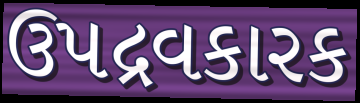
ઉપદ્રવકારક